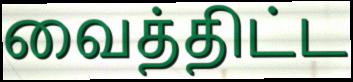
வைத்திட்ட